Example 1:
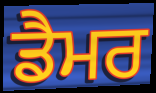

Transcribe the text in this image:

ਡੈਮਰ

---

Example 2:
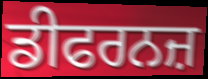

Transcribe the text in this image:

ਡੀਫਰਨਜ਼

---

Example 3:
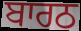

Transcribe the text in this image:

ਬਾਰਠ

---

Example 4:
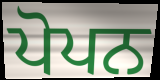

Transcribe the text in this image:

ਪੋਪਨ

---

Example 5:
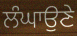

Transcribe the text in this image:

ਲੰਘਾਉਣੇ